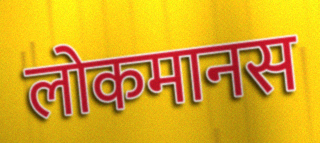
लोकमानस